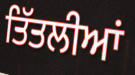
ਤਿੱਤਲੀਆਂ